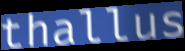
thallus